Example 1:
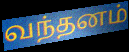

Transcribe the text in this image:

வந்தனம்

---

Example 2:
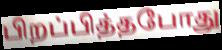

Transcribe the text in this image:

பிறப்பித்தபோது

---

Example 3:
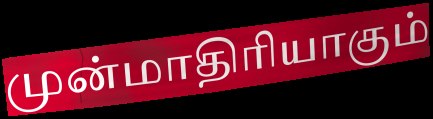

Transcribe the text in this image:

முன்மாதிரியாகும்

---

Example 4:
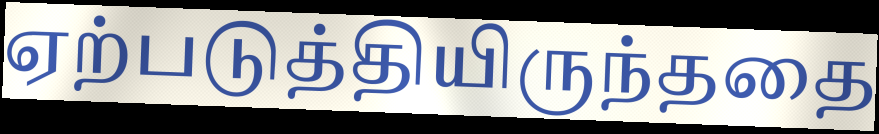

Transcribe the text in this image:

ஏற்படுத்தியிருந்ததை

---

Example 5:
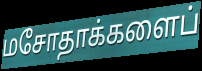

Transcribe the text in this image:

மசோதாக்களைப்